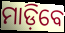
ମାଡ଼ିବେ